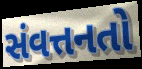
સંવત્તનતો